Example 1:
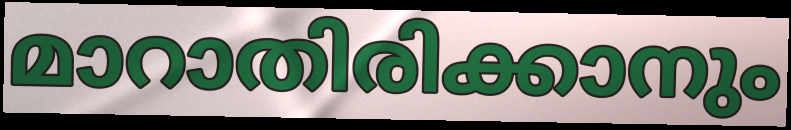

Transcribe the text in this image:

മാറാതിരിക്കാനും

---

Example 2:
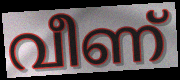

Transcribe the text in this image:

വീണ്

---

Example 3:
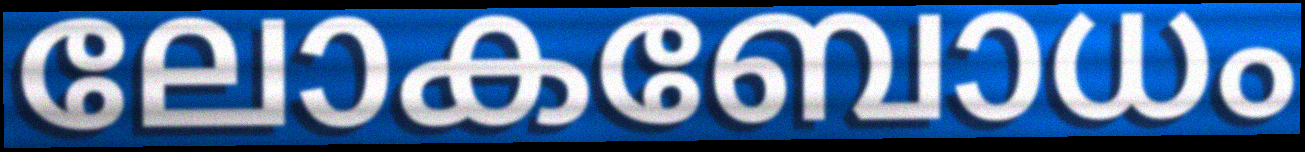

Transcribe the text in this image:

ലോകബോധം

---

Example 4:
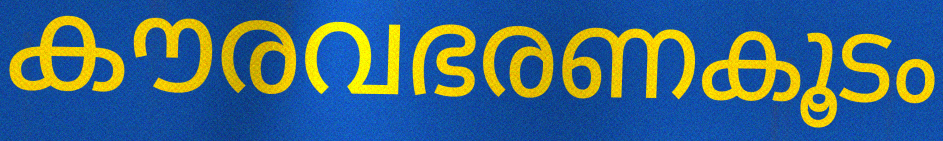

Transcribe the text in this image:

കൗരവഭരണകൂടം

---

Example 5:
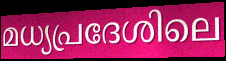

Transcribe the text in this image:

മധ്യപ്രദേശിലെ